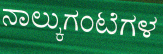
ನಾಲ್ಕುಗಂಟೆಗಳ